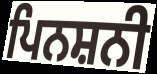
ਪਿਨਸ਼ਨੀ